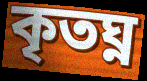
কৃতঘ্ন